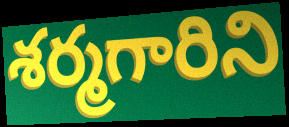
శర్మగారిని